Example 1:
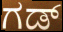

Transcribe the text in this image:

ಗಡ್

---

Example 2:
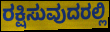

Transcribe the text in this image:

ರಕ್ಷಿಸುವುದರಲ್ಲಿ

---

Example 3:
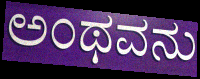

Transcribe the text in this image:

ಅಂಥವನು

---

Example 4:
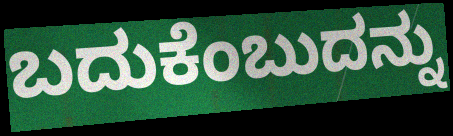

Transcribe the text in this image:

ಬದುಕೆಂಬುದನ್ನು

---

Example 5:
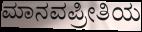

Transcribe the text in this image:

ಮಾನವಪ್ರೀತಿಯ